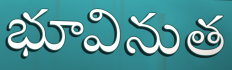
భూవినుత